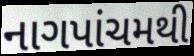
નાગપાંચમથી